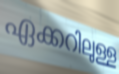
ഏക്കറിലുള്ള